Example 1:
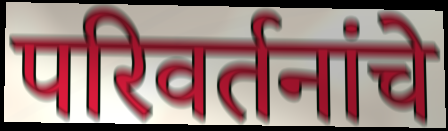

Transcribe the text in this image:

परिवर्तनांचे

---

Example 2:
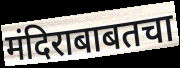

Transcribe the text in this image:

मंदिराबाबतचा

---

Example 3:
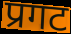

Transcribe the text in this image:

प्रगट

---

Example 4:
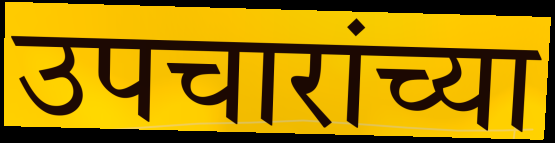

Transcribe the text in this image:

उपचारांच्या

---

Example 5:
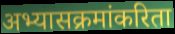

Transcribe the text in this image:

अभ्यासक्रमांकरिता